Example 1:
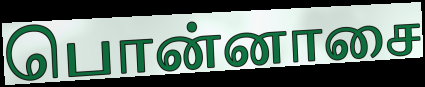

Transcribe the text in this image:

பொன்னாசை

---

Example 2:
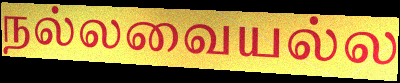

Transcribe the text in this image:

நல்லவையல்ல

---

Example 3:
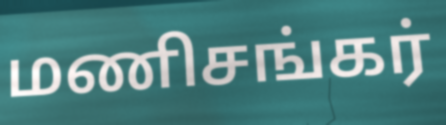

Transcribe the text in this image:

மணிசங்கர்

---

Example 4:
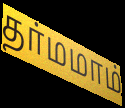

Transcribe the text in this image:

தர்மமாம்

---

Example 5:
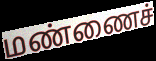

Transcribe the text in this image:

மண்ணைச்